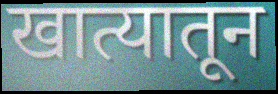
खात्यातून